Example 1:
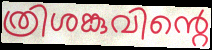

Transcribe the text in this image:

ത്രിശങ്കുവിന്റെ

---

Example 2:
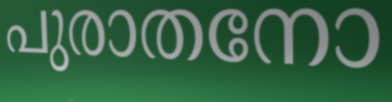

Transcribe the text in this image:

പുരാതനോ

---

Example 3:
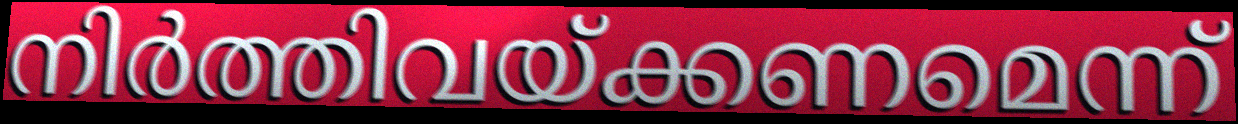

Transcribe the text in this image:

നിർത്തിവയ്ക്കണമെന്ന്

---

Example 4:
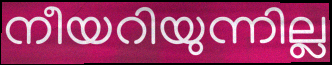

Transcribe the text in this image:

നീയറിയുന്നില്ല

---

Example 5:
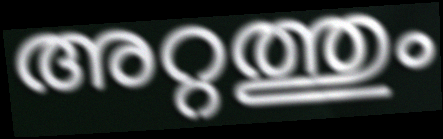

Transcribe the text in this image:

അറ്റത്തും